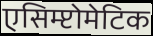
एसिम्प्टोमेटिक